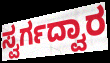
ಸ್ವರ್ಗದ್ವಾರ